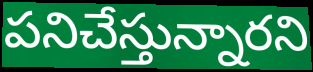
పనిచేస్తున్నారని